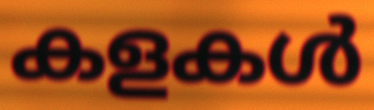
കളകൾ